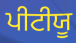
ਪੀਟੀਯੂ